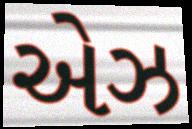
એઝ